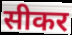
सीकर